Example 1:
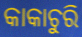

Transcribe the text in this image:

କାକାଚୁରି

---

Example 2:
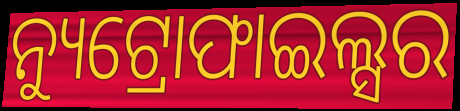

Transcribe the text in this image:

ନ୍ୟୁଟ୍ରୋଫାଇଲ୍ସର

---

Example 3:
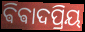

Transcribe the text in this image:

ଵିଵାଦପ୍ରିୟ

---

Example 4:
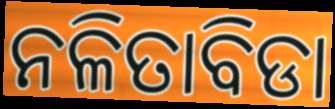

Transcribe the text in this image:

ନଳିତାବିଡା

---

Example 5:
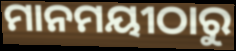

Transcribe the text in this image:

ମାନମୟୀଠାରୁ